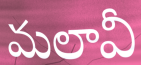
మలావీ